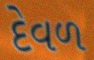
દેવળ